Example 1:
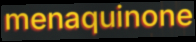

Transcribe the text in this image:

menaquinone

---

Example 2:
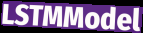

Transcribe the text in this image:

LSTMModel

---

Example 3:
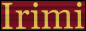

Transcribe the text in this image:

Irimi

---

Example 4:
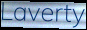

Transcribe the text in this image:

Laverty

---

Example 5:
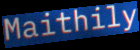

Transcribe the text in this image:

Maithily